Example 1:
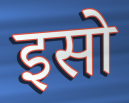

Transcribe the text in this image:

इसो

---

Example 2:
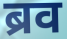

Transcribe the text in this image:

ब्रव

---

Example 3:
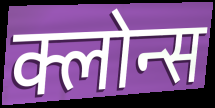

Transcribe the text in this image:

क्लोन्स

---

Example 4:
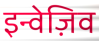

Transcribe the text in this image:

इन्वेज़िव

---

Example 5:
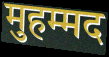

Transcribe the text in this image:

मुहम्‍मद